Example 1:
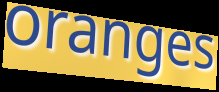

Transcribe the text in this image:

oranges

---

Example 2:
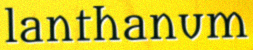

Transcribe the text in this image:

lanthanum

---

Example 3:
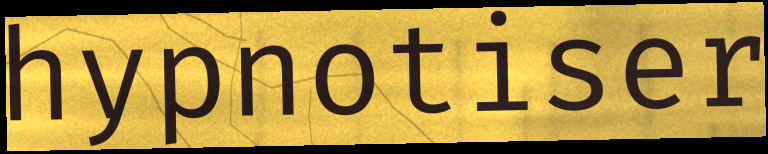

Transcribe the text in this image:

hypnotiser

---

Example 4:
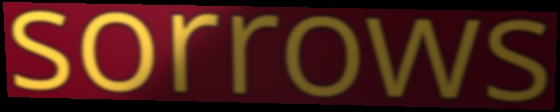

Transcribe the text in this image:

sorrows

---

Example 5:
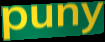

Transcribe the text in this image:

puny